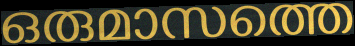
ഒരുമാസത്തെ